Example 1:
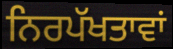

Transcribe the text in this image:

ਨਿਰਪੱਖਤਾਵਾਂ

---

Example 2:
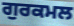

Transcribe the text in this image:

ਗੁਰਕਮਲ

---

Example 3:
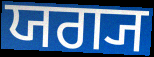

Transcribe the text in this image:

ਯਗ੍ਯ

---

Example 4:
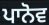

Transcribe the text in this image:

ਪਾਨੋਵ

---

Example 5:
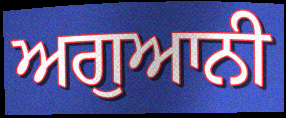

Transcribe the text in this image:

ਅਗੁਆਨੀ